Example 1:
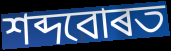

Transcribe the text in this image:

শব্দবোৰত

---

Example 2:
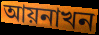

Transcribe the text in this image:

আয়নাখন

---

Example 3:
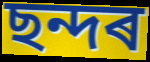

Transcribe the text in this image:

ছন্দৰ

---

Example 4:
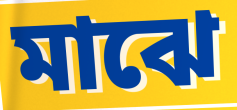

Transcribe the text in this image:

মাঝে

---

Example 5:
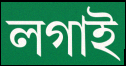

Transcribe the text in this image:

লগাই